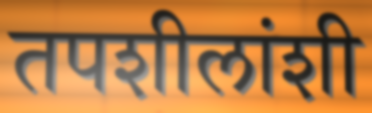
तपशीलांशी